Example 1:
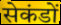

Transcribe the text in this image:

सेकंडों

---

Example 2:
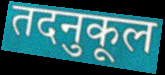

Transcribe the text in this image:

तदनुकूल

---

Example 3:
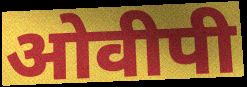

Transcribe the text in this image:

ओवीपी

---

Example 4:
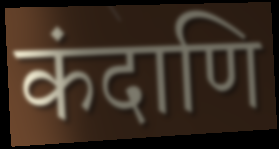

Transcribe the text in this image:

कंदाणि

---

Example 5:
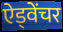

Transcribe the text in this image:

ऐड्वेंचर